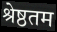
श्रेष्ठतम